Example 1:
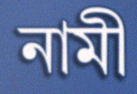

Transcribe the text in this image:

নামী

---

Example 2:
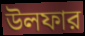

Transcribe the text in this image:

উলফার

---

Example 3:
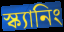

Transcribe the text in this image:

স্ক্যানিং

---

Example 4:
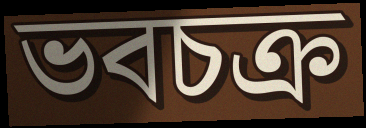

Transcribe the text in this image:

ভবচক্র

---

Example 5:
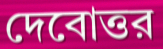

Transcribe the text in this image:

দেবোত্তর